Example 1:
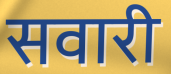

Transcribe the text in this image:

सवारी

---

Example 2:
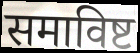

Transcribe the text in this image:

समाविष्ट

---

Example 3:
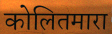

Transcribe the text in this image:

कोलितमारा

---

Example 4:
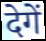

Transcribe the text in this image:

देगें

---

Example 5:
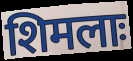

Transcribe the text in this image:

शिमलाः